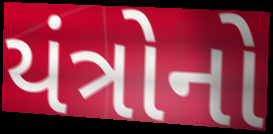
યંત્રોનો